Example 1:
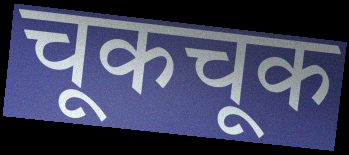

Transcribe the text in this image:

चूकचूक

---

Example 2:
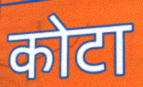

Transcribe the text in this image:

कोटा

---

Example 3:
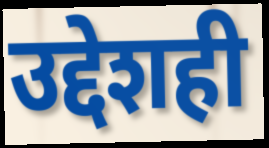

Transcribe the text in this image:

उद्देशही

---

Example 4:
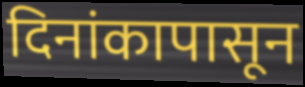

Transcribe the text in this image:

दिनांकापासून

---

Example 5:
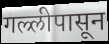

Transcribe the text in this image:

गल्लीपासून